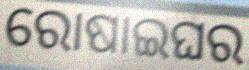
ରୋଷାଇଘର